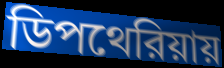
ডিপথেরিয়ায়